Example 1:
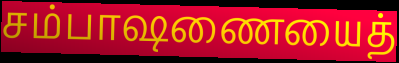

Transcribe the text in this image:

சம்பாஷணையைத்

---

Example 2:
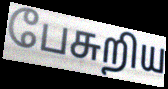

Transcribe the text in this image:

பேசுறிய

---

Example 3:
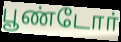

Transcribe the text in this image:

பூண்டோர்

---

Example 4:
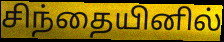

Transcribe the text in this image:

சிந்தையினில்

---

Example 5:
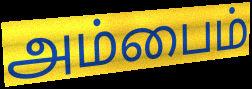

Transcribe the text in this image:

அம்பைம்